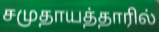
சமுதாயத்தாரில்